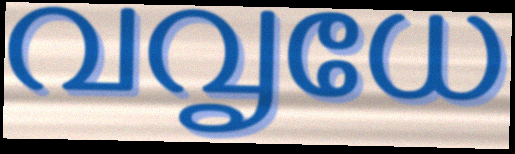
വവൃധേ